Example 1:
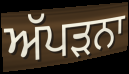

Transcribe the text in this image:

ਅੱਪੜਨਾ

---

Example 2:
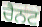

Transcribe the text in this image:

ਚੈਨਟ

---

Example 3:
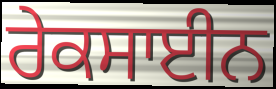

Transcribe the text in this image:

ਰੇਕਸਾਈਨ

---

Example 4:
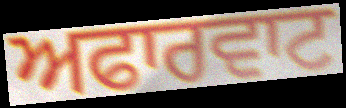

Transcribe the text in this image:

ਅਫਾਰਵਾਟ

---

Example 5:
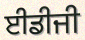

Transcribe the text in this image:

ਈਡੀਜੀ